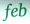
feb